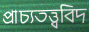
প্রাচ্যতত্ত্ববিদ